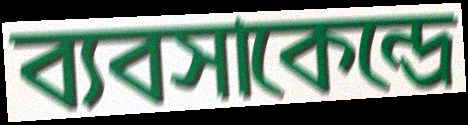
ব্যবসাকেন্দ্রে